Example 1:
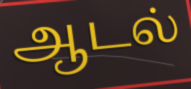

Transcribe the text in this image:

ஆடல்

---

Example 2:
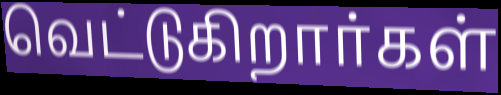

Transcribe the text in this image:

வெட்டுகிறார்கள்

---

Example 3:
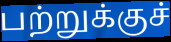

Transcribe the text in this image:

பற்றுக்குச்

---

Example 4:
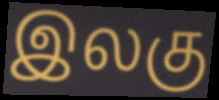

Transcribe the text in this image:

இலகு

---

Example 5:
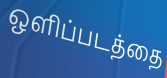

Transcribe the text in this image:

ஒளிப்படத்தை